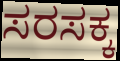
ಸರಸಕ್ಕ